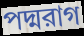
পদ্মরাগ